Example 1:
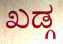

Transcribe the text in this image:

ಖಡ್ಗ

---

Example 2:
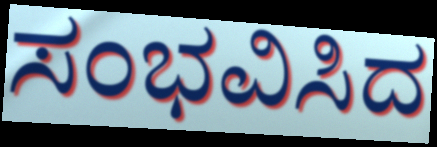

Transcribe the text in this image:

ಸಂಭವಿಸಿದ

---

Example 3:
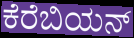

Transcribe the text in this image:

ಕೆರೆಬಿಯನ್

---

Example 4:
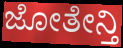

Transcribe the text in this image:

ಜೋತೇನ್ತಿ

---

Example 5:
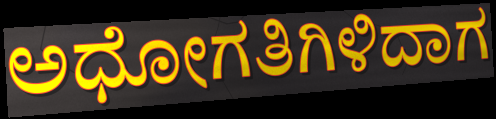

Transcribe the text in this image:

ಅಧೋಗತಿಗಿಳಿದಾಗ